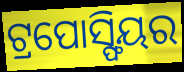
ଟ୍ରପୋସ୍ଫିୟର